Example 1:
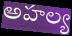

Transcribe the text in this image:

అహల్య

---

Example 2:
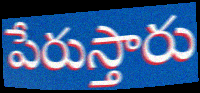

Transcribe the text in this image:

పేరుస్తారు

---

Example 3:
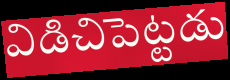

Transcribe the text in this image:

విడిచిపెట్టడు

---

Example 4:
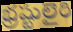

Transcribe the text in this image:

భ్రష్టులైరి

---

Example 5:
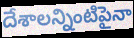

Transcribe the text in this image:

దేశాలన్నింటిపైనా